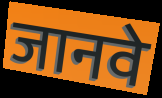
जानवे